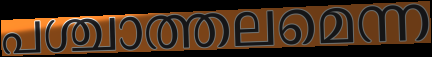
പശ്ചാത്തലമെന്ന